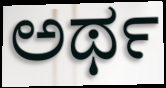
ಅರ್ಥ